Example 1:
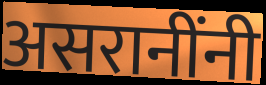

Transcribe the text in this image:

असरानींनी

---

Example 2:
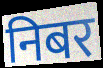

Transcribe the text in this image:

निबर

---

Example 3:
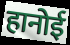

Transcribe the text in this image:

हानोई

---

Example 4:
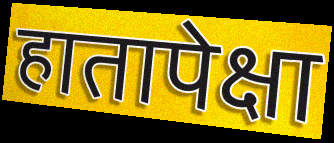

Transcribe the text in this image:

हातापेक्षा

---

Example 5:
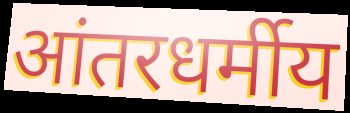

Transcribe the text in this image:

आंतरधर्मीय